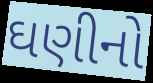
ઘણીનો